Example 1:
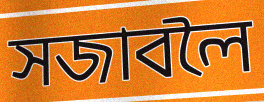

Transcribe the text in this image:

সজাবলৈ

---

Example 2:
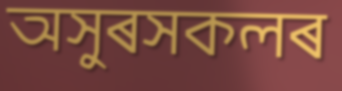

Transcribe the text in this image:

অসুৰসকলৰ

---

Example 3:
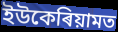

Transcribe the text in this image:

ইউকেৰিয়ামত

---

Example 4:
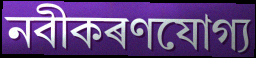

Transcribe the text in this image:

নবীকৰণযোগ্য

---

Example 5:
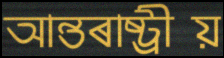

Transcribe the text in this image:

আন্তৰাষ্ট্ৰীয়